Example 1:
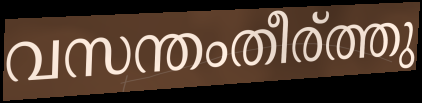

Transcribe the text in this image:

വസന്തംതീര്ത്തു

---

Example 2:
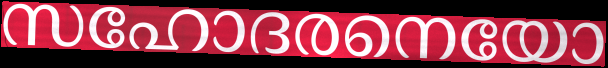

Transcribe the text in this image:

സഹോദരനെയോ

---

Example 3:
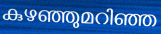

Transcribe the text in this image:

കുഴഞ്ഞുമറിഞ്ഞ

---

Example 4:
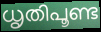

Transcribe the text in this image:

ധൃതിപൂണ്ട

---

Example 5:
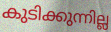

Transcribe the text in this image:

കുടിക്കുന്നില്ല